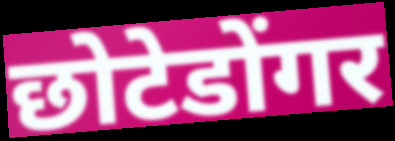
छोटेडोंगर